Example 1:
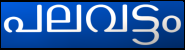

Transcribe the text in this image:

പലവട്ടം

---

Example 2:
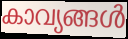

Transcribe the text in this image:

കാവ്യങ്ങൾ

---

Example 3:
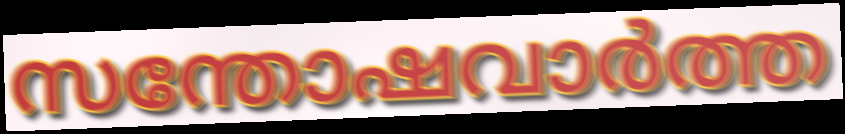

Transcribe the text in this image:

സന്തോഷവാർത്ത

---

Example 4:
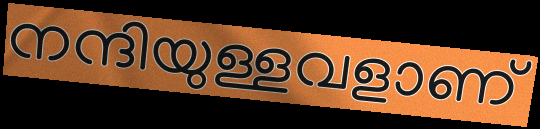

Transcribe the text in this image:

നന്ദിയുള്ളവളാണ്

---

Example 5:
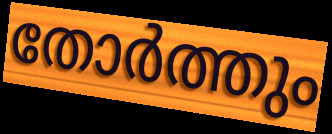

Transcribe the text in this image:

തോർത്തും